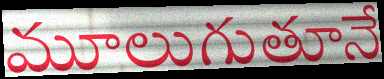
మూలుగుతూనే